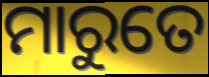
ମାରୁତେ